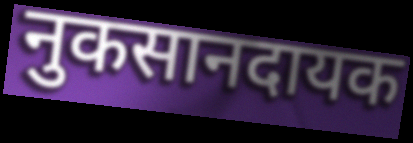
नुकसानदायक